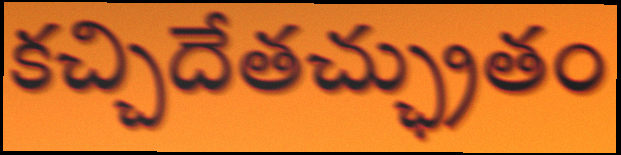
కచ్చిదేతచ్ఛ్రుతం